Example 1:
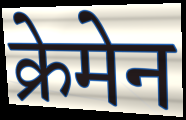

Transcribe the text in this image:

क्रेमेन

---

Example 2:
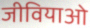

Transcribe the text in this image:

जीवियाओ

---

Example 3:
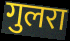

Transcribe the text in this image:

गुलरा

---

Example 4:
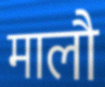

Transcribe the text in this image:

मालौ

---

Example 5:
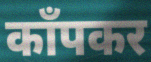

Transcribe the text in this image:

काँपकर